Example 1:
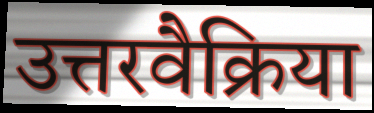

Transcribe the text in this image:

उत्तरवैक्रिया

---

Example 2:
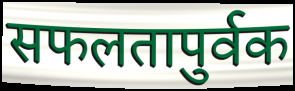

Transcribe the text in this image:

सफलतापुर्वक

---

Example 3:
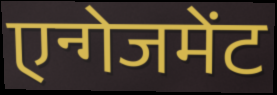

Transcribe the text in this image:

एन्गेजमेंट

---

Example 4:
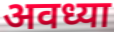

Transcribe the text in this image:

अवध्या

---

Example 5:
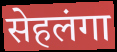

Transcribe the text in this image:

सेहलंगा